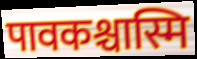
पावकश्चास्मि